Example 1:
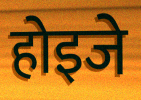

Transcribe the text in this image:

होइजे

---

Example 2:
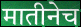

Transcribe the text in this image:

मातीनेच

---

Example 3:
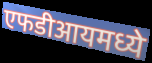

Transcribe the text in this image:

एफडीआयमध्ये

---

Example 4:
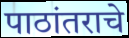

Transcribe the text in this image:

पाठांतराचे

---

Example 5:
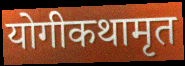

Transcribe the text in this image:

योगीकथामृत